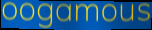
oogamous